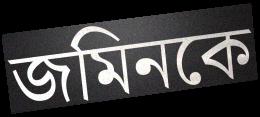
জমিনকে